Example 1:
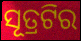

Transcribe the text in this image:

ସୂତ୍ରଟିର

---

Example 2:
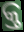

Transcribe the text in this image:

କ୍ତ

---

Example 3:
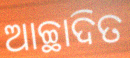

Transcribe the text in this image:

ଆଚ୍ଛାଦିତ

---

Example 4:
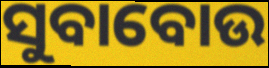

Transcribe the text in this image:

ସୁବାବୋଉ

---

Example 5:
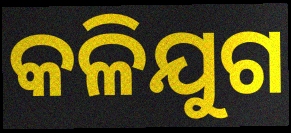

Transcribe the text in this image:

କଳିଯୁଗ